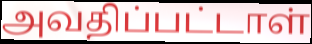
அவதிப்பட்டாள்